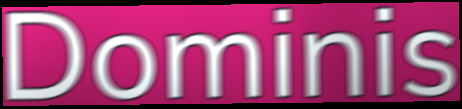
Dominis